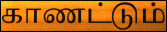
காணட்டும்